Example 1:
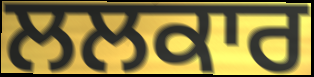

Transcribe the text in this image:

ਲਲਕਾਰ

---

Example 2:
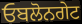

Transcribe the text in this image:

ਓਬਲੋਨਗੇਟ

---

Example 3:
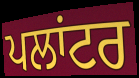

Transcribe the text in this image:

ਪਲਾਂਟਰ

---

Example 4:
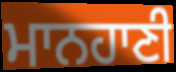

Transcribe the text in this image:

ਮਾਨਹਾਣੀ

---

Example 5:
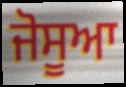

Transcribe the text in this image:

ਜੋਸੂਆ